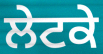
ਲੇਟਕੇ